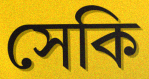
সেকি